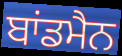
ਬਾਂਡਮੈਨ